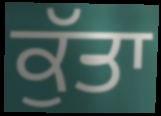
ਕੁੱਤਾ